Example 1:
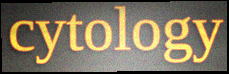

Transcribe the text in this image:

cytology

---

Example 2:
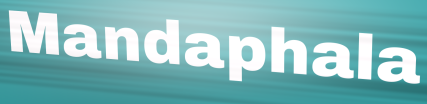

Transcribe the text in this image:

Mandaphala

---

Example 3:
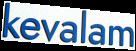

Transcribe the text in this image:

kevalam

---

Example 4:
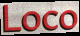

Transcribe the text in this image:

Loco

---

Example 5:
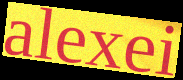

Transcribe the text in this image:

alexei